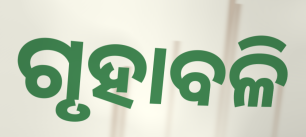
ଗୃହାବଳି